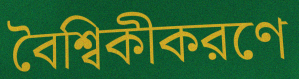
বৈশ্বিকীকরণে